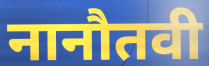
नानौतवी